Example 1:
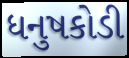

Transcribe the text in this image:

ધનુષકોડી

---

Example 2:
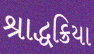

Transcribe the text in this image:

શ્રાદ્ધક્રિયા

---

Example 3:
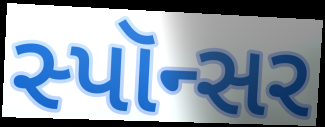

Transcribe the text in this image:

સ્પૉન્સર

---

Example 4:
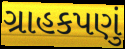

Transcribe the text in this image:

ગ્રાહકપણું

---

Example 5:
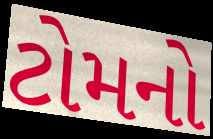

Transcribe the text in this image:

ટોમનો